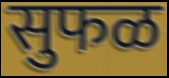
सुफळ